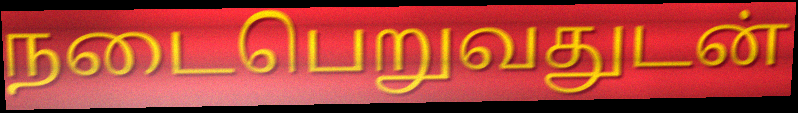
நடைபெறுவதுடன்